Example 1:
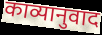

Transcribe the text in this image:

काव्यानुवाद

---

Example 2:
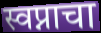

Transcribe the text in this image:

स्वप्नाचा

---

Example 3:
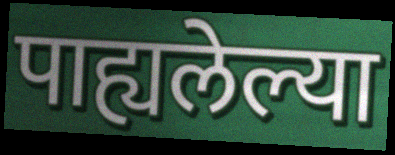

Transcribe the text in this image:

पाह्यलेल्या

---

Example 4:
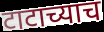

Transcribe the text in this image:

टाटाच्याच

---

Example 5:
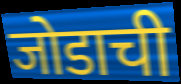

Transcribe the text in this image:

जोडाची